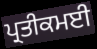
ਪ੍ਰਤੀਕਮਈ